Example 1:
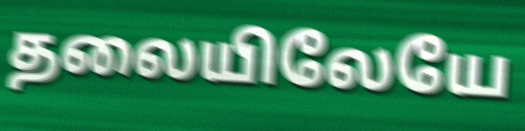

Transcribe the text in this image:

தலையிலேயே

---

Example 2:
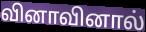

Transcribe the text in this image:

வினாவினால்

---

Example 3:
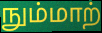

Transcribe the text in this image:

நும்மாற்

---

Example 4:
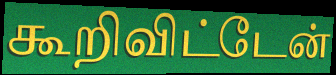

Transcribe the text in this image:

கூறிவிட்டேன்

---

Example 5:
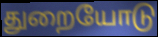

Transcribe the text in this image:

துறையோடு